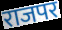
राजपर